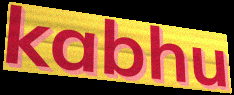
kabhu